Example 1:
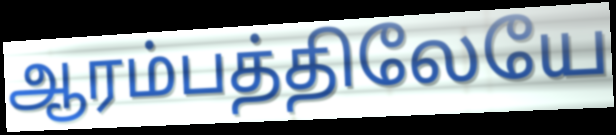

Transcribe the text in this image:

ஆரம்பத்திலேயே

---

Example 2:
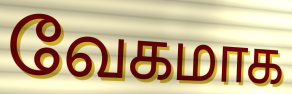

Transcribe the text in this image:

வேகமாக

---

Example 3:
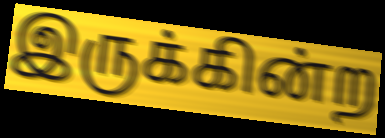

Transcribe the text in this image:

இருக்கின்ற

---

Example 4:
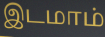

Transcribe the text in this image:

இடமாம்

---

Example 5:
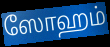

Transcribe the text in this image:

ஸோஹம்